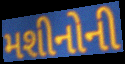
મશીનોની